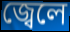
জ্বেলে